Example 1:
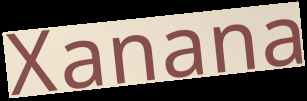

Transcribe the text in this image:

Xanana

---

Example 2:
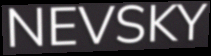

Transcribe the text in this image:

NEVSKY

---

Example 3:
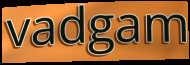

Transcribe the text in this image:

vadgam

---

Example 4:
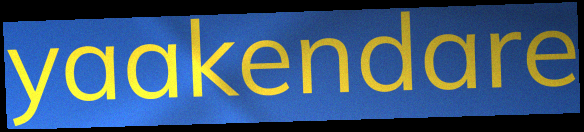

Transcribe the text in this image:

yaakendare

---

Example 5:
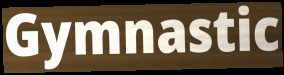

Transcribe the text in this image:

Gymnastic